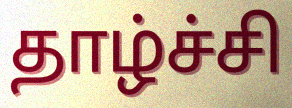
தாழ்ச்சி